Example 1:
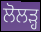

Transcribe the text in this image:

ਲੋਲੜ੍ਹ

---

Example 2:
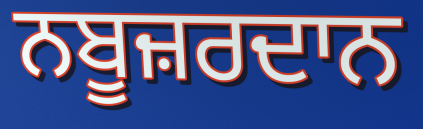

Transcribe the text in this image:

ਨਬੂਜ਼ਰਦਾਨ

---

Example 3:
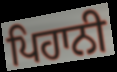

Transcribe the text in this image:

ਪਿਹਾਨੀ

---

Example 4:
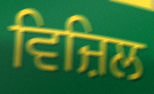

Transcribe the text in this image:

ਵਿਜ਼ਿਲ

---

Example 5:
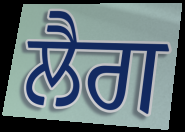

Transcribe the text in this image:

ਲੈਗ